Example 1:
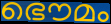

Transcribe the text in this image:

ഭൌമം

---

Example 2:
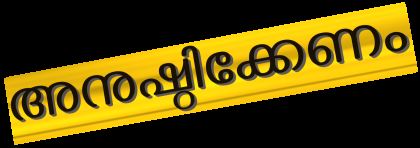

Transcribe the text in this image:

അനുഷ്ഠിക്കേണം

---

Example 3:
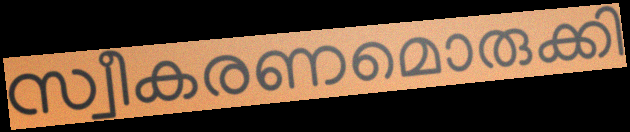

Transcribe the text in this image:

സ്വീകരണമൊരുക്കി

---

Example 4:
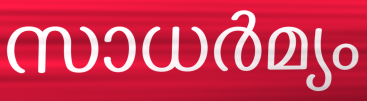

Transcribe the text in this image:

സാധർമ്യം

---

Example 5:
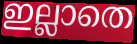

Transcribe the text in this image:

ഇല്ലാതെ